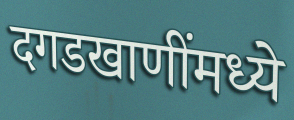
दगडखाणींमध्ये